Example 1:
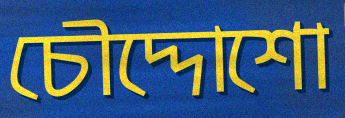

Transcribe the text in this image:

চৌদ্দোশো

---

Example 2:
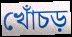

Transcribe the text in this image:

খোঁচড়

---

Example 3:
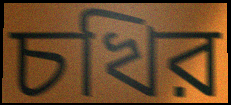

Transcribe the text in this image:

চখির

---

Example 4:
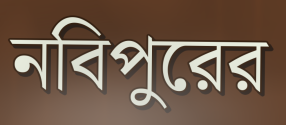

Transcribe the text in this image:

নবিপুরের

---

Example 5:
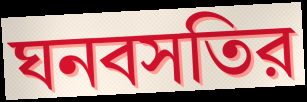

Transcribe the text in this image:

ঘনবসতির